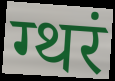
ग्थरं